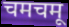
चमचमू